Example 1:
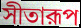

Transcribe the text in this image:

সীতারূপ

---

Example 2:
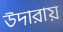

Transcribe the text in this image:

উদারায়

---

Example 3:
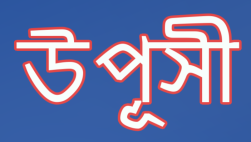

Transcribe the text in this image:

উপূসী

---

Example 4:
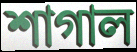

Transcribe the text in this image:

শাগাল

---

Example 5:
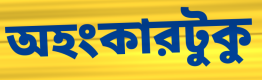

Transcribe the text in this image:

অহংকারটুকু